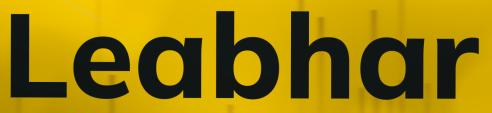
Leabhar